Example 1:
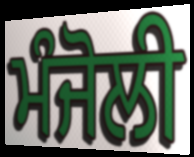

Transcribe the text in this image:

ਮੰਜੋਲੀ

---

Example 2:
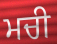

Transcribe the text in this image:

ਮਚੀ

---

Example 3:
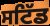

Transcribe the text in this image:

ਸਟਿੱਡ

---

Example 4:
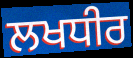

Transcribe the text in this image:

ਲਖਧੀਰ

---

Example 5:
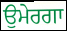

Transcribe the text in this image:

ਉਮੇਰਗਾ